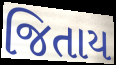
જિતાય